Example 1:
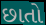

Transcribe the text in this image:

છાતો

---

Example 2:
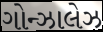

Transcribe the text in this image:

ગોન્ઝાલેઝ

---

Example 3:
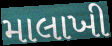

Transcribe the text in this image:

માલાખી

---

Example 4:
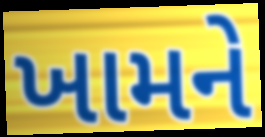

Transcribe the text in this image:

ખામને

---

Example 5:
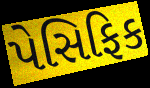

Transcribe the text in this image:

પેસિફિક